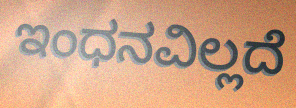
ಇಂಧನವಿಲ್ಲದೆ